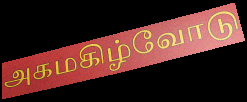
அகமகிழ்வோடு